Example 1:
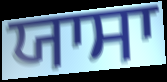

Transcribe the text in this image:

ਯਾਸਾ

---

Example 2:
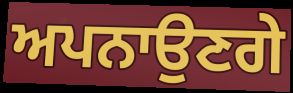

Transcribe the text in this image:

ਅਪਨਾਉਣਗੇ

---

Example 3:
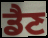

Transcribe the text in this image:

ਡੈਣ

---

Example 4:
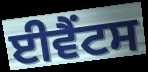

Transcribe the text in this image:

ਈਵੈਂਟਸ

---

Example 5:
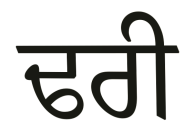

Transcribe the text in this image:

ਢਰੀ